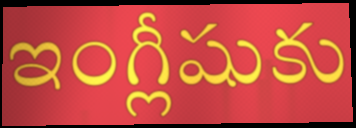
ఇంగ్లీషుకు